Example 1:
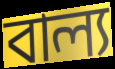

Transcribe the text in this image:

বাল্য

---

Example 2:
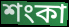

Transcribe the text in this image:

শংকা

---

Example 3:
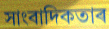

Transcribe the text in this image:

সাংবাদিকতাৰ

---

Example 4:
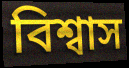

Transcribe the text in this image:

বিশ্বাস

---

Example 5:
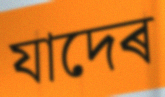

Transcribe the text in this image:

যাদেৰ